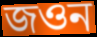
জওন